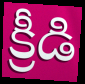
క్రీడి